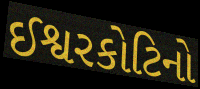
ઈશ્વરકોટિનો